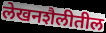
लेखनशैलीतील